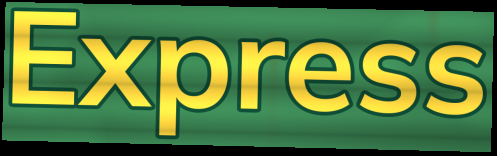
Express